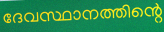
ദേവസ്ഥാനത്തിന്റെ